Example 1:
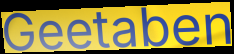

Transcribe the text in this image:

Geetaben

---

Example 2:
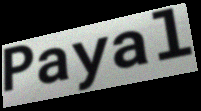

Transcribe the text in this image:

Payal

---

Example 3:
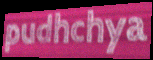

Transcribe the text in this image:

pudhchya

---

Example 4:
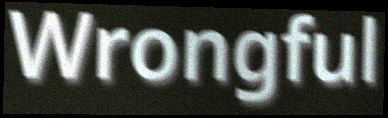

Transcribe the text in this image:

Wrongful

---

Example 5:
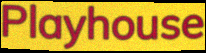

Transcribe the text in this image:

Playhouse